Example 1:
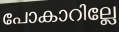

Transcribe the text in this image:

പോകാറില്ലേ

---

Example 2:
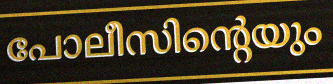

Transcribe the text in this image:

പോലീസിന്റെയും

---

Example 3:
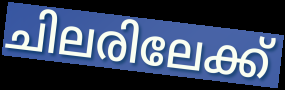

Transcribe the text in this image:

ചിലരിലേക്ക്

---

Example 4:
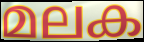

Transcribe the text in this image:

മലക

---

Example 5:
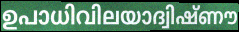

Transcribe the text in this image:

ഉപാധിവിലയാദ്വിഷ്ണൗ